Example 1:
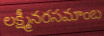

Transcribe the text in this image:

లక్ష్మీనరసమాంబ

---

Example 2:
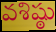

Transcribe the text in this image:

వశిష్ఠు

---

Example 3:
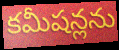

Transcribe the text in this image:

కమీషన్లను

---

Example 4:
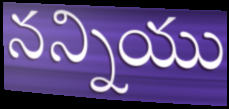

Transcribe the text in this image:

నన్నియు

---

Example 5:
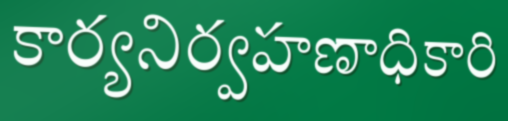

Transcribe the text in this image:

కార్యనిర్వహణాధికారి